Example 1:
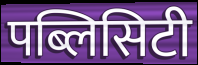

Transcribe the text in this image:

पब्लिसिटी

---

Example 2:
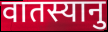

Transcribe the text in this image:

वातस्यानु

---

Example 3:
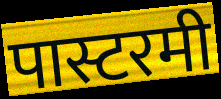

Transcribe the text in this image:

पास्टरमी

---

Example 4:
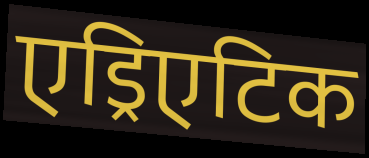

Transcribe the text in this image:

एड्रिएटिक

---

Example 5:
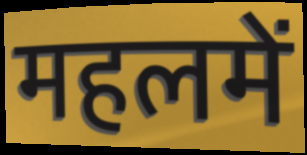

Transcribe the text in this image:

महलमें